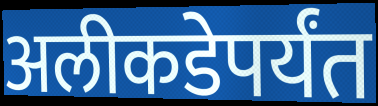
अलीकडेपर्यंत